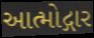
આત્મોદ્ગાર